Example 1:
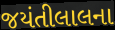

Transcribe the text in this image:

જયંતીલાલના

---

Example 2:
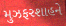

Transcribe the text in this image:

મુઝફરશાહને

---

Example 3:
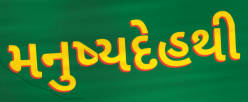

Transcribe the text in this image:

મનુષ્યદેહથી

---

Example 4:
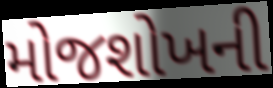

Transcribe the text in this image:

મોજશોખની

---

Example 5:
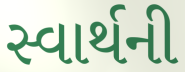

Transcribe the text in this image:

સ્વાર્થની